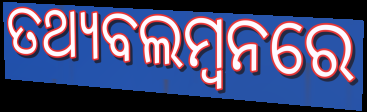
ତଥ୍ୟବଲମ୍ବନରେ